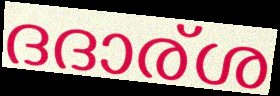
ദദാര്ശ